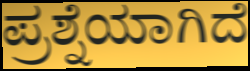
ಪ್ರಶ್ನೆಯಾಗಿದೆ